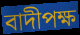
বাদীপক্ষ